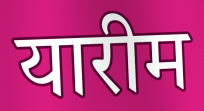
यारीम